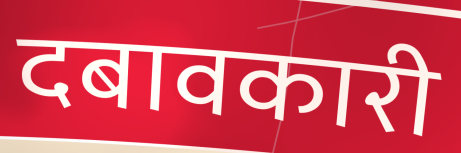
दबावकारी